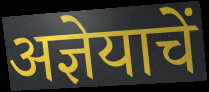
अज्ञेयाचें